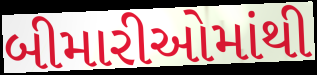
બીમારીઓમાંથી